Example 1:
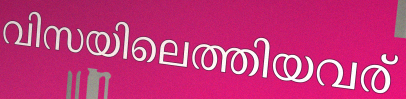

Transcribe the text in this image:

വിസയിലെത്തിയവര്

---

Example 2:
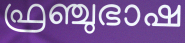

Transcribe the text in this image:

ഫ്രഞ്ചുഭാഷ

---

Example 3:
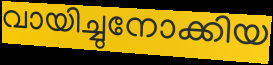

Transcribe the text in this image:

വായിച്ചുനോക്കിയ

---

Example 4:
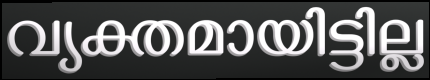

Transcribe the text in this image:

വ്യക്തമായിട്ടില്ല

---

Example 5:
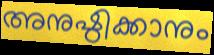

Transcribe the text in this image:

അനുഷ്ഠിക്കാനും